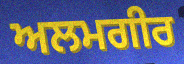
ਅਲਮਗੀਰ